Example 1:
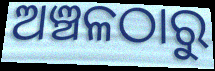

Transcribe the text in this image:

ଅଞ୍ଚଳଠାରୁ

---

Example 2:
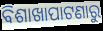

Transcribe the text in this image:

ବିଶାଖାପାଟଣାରୁ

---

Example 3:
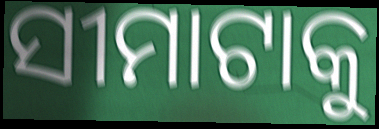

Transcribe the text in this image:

ସୀମାଟାକୁ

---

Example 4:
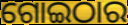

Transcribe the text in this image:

ଗୋଇଠାର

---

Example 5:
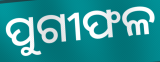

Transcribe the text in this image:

ପୁଗୀଫଳ